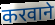
करवाने